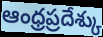
ఆంధ్రప్రదేశ్కు